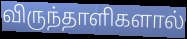
விருந்தாளிகளால்